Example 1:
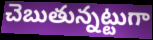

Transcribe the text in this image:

చెబుతున్నట్టుగా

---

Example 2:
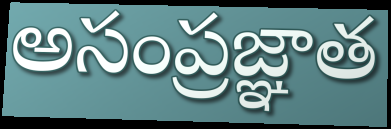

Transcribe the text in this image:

అసంప్రజ్ఞాత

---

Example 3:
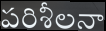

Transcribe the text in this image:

పరిశీలనా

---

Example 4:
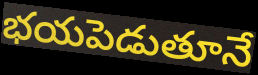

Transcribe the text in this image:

భయపెడుతూనే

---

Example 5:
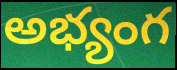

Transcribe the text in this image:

అభ్యంగ